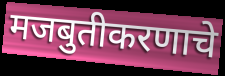
मजबुतीकरणाचे